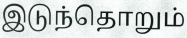
இடுந்தொறும்